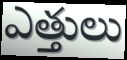
ఎత్తులు